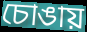
চোঙায়